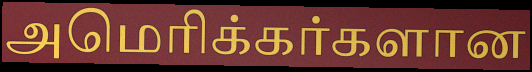
அமெரிக்கர்களான